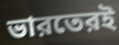
ভারতেরই